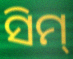
ସିମ୍